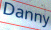
Danny